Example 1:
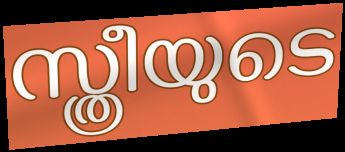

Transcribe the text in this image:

സ്ത്രീയുടെ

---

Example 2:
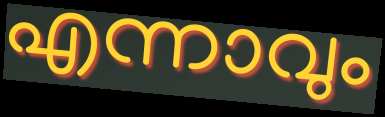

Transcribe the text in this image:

എന്നാവും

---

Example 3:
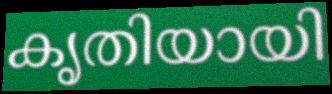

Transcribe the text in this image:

കൃതിയായി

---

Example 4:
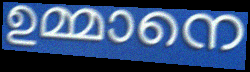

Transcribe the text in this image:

ഉമ്മാനെ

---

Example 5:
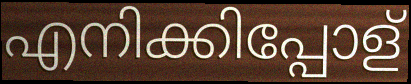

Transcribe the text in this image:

എനിക്കിപ്പോള്